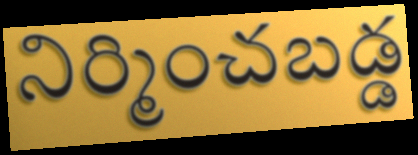
నిర్మించబడ్డ